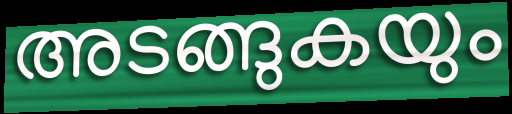
അടങ്ങുകയും